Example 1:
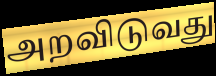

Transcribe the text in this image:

அறவிடுவது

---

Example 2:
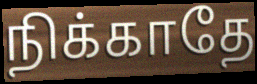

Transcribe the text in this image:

நிக்காதே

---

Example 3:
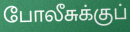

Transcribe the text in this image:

போலீசுக்குப்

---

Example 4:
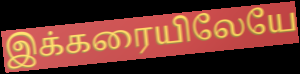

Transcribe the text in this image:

இக்கரையிலேயே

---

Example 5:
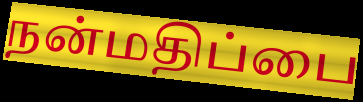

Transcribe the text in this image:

நன்மதிப்பை